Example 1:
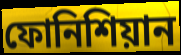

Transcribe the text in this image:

ফোনিশিয়ান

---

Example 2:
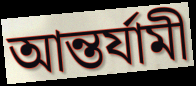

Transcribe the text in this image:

আন্তর্যামী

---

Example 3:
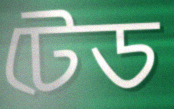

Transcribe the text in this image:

টেড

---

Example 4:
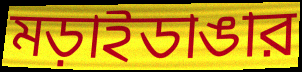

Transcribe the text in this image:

মড়াইডাঙার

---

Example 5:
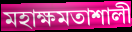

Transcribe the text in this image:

মহাক্ষমতাশালী